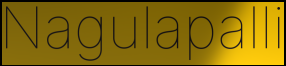
Nagulapalli